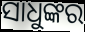
ସାଧୁଙ୍କର